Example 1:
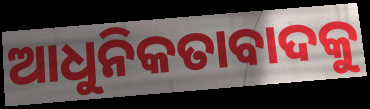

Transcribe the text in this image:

ଆଧୁନିକତାବାଦକୁ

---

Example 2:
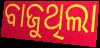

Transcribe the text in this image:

ବାଜୁଥିଲା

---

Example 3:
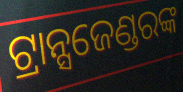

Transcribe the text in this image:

ଟ୍ରାନ୍ସଜେଣ୍ଡରଙ୍କ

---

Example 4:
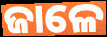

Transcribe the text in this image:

ଜାଳେ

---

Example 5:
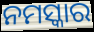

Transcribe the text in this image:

ନମସ୍କାର